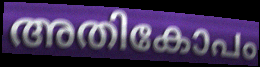
അതികോപം